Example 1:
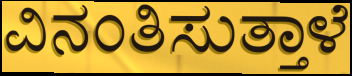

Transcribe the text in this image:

ವಿನಂತಿಸುತ್ತಾಳೆ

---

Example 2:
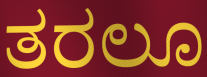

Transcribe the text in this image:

ತರಲೂ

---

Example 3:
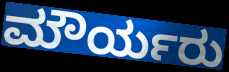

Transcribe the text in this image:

ಮೌರ್ಯರು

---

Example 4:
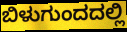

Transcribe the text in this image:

ಬಿಳುಗುಂದದಲ್ಲಿ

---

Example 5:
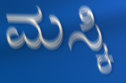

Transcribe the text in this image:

ಮಸ್ಕಿ